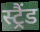
स्ट्रैंड